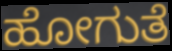
ಹೋಗುತೆ